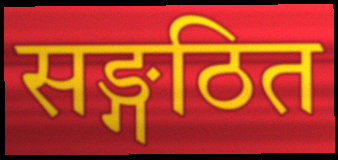
सङ्गठित